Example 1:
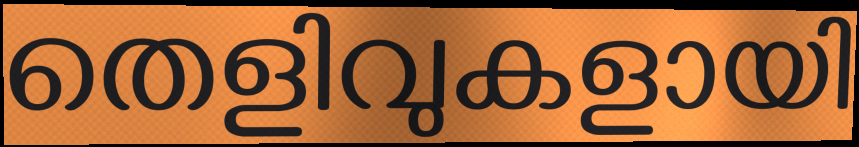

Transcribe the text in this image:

തെളിവുകളായി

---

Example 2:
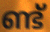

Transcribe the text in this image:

ണ്ട്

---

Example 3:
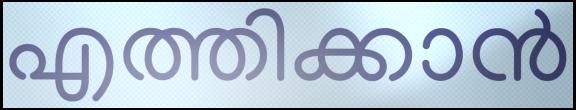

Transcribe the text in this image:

എത്തിക്കാൻ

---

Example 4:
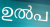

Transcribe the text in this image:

ഉൽപ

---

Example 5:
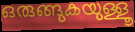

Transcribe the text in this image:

ഒരുങ്ങുകയുള്ളൂ